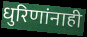
धुरिणांनाही